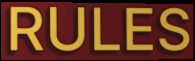
RULES